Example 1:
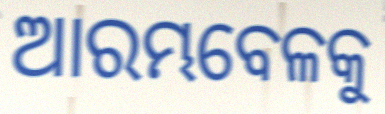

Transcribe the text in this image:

ଆରମ୍ଭବେଳକୁ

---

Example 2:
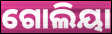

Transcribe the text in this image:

ଗୋଲିୟା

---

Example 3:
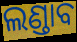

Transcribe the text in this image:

ଲଣ୍ଡାବ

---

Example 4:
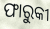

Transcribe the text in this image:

ଫାରୁକୀ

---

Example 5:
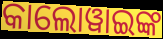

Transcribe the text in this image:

କାଲୋୱାଇଙ୍କ